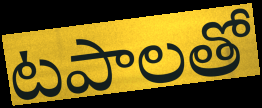
టపాలతో